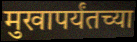
मुखापर्यंतच्या